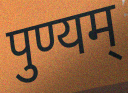
पुण्यम्